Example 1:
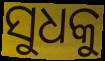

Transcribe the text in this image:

ସୁଧକୁ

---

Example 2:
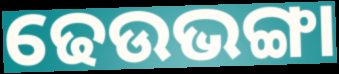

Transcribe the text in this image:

ଢେଉଭଙ୍ଗା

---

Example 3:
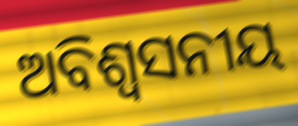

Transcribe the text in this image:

ଅବିଶ୍ବସନୀୟ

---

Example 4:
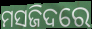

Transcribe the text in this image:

ମସଜିଦରେ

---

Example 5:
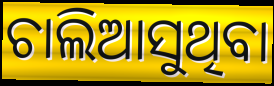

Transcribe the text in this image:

ଚାଲିଆସୁଥିବା